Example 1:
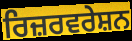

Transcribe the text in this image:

ਰਿਜ਼ਰਵਰੇਸ਼ਨ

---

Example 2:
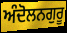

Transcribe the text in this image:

ਅੰਦੋਲਨਗੁਰੂ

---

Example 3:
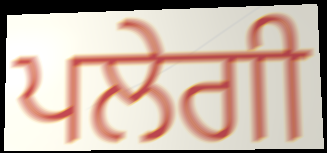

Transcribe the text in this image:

ਪਲੇਗੀ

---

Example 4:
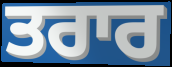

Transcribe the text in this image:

ਤਰਾਰ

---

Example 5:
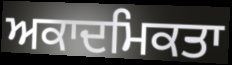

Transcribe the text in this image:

ਅਕਾਦਮਿਕਤਾ